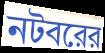
নটবরের